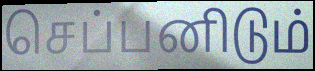
செப்பனிடும்